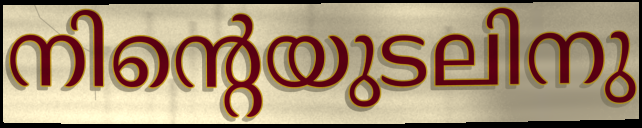
നിന്റെയുടലിനു